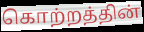
கொற்றத்தின்